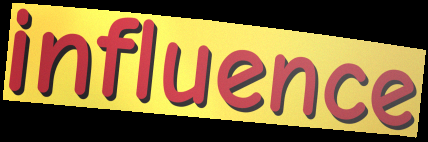
influence